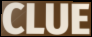
CLUE